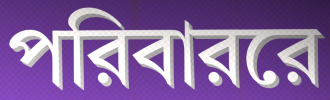
পরিবাররে